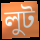
লুট